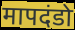
मापदंडो